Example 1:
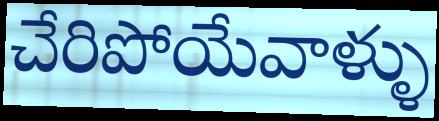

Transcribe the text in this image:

చేరిపోయేవాళ్ళు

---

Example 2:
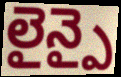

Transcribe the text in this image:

లైన్పై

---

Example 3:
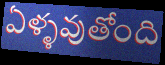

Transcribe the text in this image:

ఏళ్ళవుతోంది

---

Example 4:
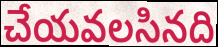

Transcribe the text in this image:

చేయవలసినది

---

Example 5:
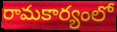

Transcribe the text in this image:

రామకార్యంలో